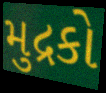
મુદ્રકો